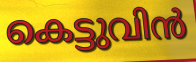
കെട്ടുവിൻ